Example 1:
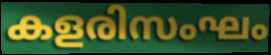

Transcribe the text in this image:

കളരിസംഘം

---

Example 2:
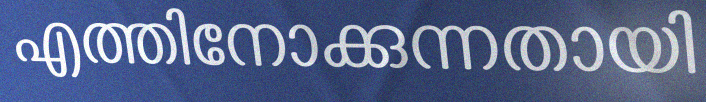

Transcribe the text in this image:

എത്തിനോക്കുന്നതായി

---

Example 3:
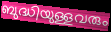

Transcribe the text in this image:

ബുദ്ധിയുള്ളവരും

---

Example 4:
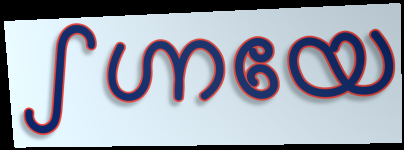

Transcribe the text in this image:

ഽഗ്നയേ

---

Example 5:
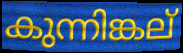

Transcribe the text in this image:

കുന്നിങ്കല്